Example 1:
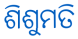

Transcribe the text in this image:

ଶିଶୁମତି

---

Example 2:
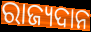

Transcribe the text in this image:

ରାଜ୍ୟଦାନ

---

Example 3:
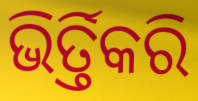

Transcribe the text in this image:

ଭିର୍ତ୍ତିକରି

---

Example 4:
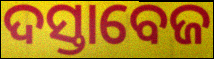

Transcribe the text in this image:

ଦସ୍ତାବେଜ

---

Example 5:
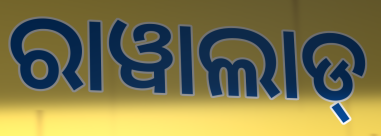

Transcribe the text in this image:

ରାୱାଲାଡ୍